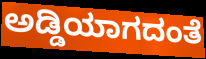
ಅಡ್ಡಿಯಾಗದಂತೆ